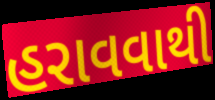
હરાવવાથી